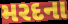
મરદના